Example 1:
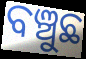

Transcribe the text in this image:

ବଞ୍ଚୁଛ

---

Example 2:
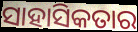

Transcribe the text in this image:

ସାହାସିକତାର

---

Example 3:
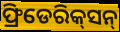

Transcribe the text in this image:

ଫ୍ରିଡେରିକ୍‌ସନ୍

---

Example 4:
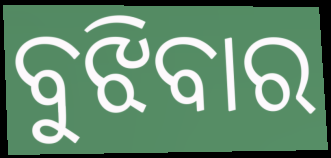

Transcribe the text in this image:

ବୁଝିବାର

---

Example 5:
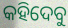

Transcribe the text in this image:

କହିଦେବୁ